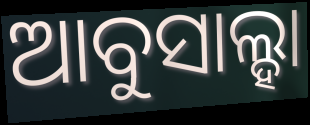
ଆବୁସାଲ୍ହା